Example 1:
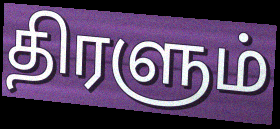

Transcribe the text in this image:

திரளும்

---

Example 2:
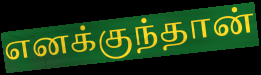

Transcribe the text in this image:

எனக்குந்தான்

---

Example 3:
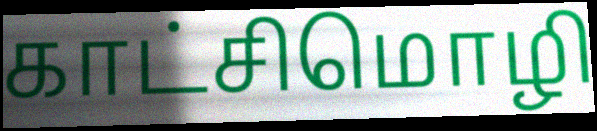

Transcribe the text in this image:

காட்சிமொழி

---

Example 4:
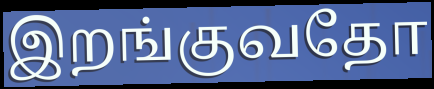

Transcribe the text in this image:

இறங்குவதோ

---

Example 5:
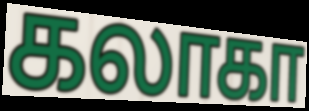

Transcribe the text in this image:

கலாகா